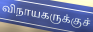
விநாயகருக்குச்